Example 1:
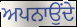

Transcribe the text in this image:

ਅਪਨਾਉਂਦੇ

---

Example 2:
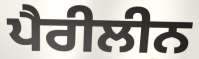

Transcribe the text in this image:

ਪੈਰੀਲੀਨ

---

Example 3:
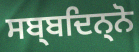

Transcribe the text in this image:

ਸਬ੍ਬਦਿਨ੍ਨੋ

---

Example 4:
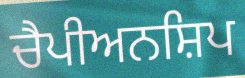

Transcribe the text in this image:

ਚੈਪੀਅਨਸ਼ਿਪ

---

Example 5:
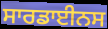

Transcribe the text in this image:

ਸਾਰਡਾਈਨਸ